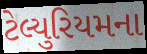
ટેલ્યુરિયમના